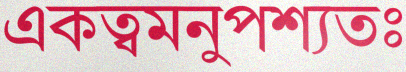
একত্বমনুপশ্যতঃ